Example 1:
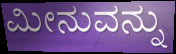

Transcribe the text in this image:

ಮೀನುವನ್ನು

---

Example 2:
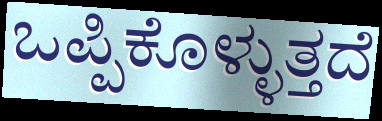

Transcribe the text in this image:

ಒಪ್ಪಿಕೊಳ್ಳುತ್ತದೆ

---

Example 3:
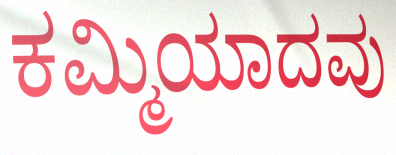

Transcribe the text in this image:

ಕಮ್ಮಿಯಾದವು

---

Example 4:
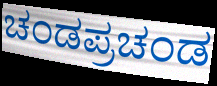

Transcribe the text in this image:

ಚಂಡಪ್ರಚಂಡ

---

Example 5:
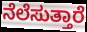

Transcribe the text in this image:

ನೆಲೆಸುತ್ತಾರೆ